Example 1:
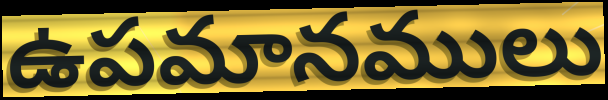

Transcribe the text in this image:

ఉపమానములు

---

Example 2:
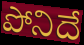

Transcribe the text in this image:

పోనిదే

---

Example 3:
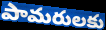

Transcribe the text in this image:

పామరులకు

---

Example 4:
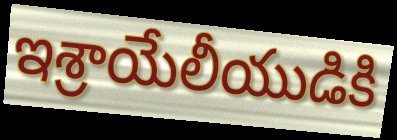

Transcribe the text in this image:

ఇశ్రాయేలీయుడికి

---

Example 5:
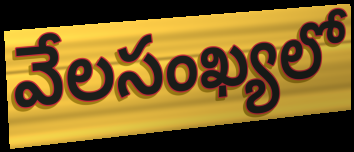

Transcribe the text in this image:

వేలసంఖ్యలో